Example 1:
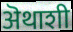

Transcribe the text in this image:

ऄथाशी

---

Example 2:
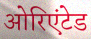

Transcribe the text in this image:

ओरिएंटेड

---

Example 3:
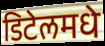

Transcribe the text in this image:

डिटेलमधे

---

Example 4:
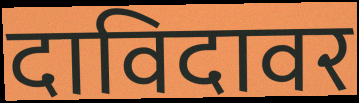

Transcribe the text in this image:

दाविदावर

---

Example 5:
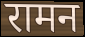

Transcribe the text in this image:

रामन